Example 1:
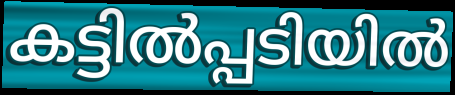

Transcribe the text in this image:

കട്ടിൽപ്പടിയിൽ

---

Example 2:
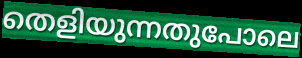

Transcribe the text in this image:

തെളിയുന്നതുപോലെ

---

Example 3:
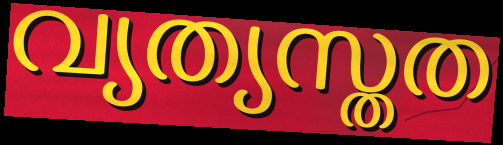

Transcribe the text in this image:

വ്യത്യസ്തത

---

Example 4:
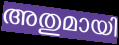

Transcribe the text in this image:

അതുമായി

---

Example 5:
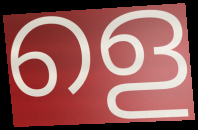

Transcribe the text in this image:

ളെ